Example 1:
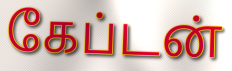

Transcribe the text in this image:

கேப்டன்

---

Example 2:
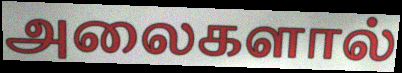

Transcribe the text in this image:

அலைகளால்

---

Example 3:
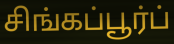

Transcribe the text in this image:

சிங்கப்பூர்ப்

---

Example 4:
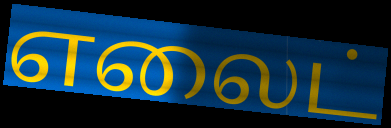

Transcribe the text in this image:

எலைட்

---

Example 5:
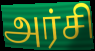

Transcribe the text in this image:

அர்சி